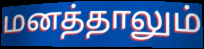
மனத்தாலும்